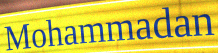
Mohammadan